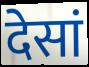
देसां